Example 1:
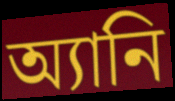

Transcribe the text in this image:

অ্যানি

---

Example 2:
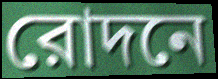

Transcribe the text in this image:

রোদনে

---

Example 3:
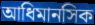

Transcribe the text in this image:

আধিমানসিক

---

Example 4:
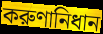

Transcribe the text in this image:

করুণানিধান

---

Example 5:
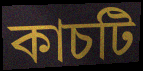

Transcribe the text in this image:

কাচটি